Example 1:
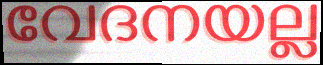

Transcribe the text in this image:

വേദനയല്ല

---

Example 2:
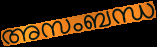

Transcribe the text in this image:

അസംബന്ധ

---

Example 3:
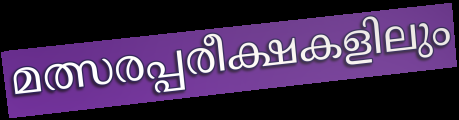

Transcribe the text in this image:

മത്സരപ്പരീക്ഷകളിലും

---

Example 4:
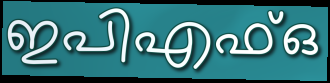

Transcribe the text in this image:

ഇപിഎഫ്ഒ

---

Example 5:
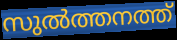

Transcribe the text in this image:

സുൽത്തനത്ത്